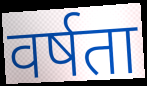
वर्षता